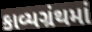
કાવ્યગ્રંથમાં